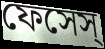
ফেসেস্